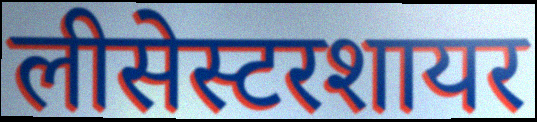
लीसेस्टरशायर